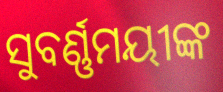
ସୁବର୍ଣ୍ଣମୟୀଙ୍କ